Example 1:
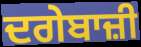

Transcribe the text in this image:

ਦਗੇਬਾਜ਼ੀ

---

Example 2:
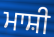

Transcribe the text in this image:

ਮਾਸ਼ੀ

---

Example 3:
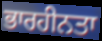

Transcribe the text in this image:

ਭਾਰਹੀਨਤਾ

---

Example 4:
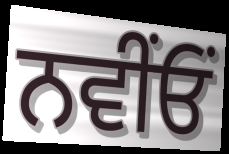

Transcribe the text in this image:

ਨਵੀਂਓਂ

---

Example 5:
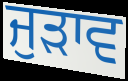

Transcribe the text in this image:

ਜੁੜਾਵ